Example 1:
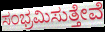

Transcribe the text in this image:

ಸಂಭ್ರಮಿಸುತ್ತೇವೆ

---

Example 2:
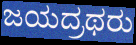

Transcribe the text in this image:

ಜಯದ್ರಥರು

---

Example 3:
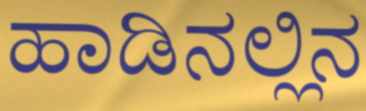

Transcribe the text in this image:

ಹಾಡಿನಲ್ಲಿನ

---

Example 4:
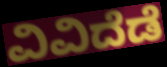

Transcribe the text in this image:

ವಿವಿದೆಡೆ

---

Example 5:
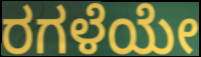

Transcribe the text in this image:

ರಗಳೆಯೇ